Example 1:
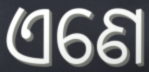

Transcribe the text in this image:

ଏଣେ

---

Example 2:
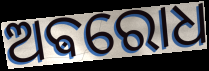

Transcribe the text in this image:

ଅଵରୋଧ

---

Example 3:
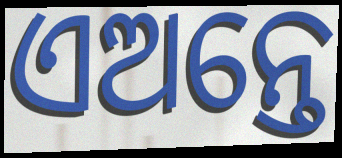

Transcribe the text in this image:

ଏଅନ୍ତେ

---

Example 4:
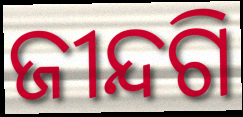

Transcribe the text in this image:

ଜୀନ୍ଦଗି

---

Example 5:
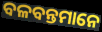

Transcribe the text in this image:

ବଳବନ୍ତମାନେ